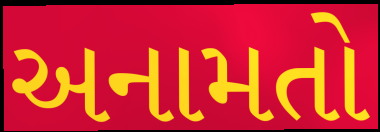
અનામતો